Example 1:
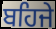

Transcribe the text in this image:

ਬਹਿਜੇ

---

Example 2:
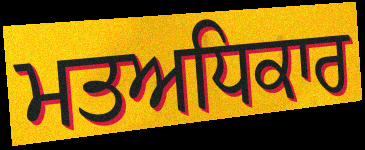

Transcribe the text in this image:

ਮਤਅਧਿਕਾਰ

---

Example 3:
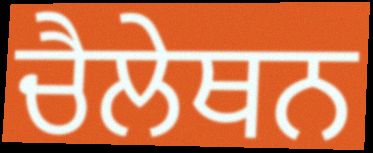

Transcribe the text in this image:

ਚੈਲੇਥਨ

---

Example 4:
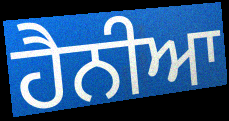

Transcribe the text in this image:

ਹੈਨੀਆ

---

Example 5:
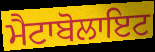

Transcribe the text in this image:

ਮੈਟਾਬੋਲਾਇਟ